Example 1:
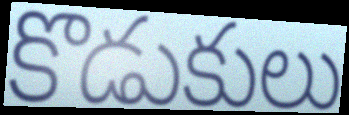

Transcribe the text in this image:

కొడుకులు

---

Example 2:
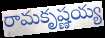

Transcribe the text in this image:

రామకృష్ణయ్య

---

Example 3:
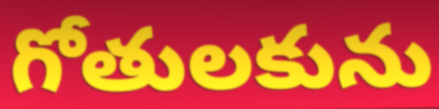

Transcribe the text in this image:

గోతులకును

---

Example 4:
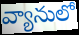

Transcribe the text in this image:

వ్యానులో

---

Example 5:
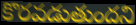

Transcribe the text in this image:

కొరవడుతుందని